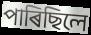
পাৰিছিলে